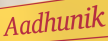
Aadhunik